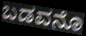
ಬಡವನೊ